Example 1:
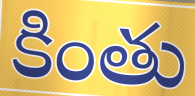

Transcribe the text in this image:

కింతు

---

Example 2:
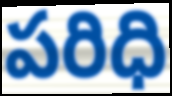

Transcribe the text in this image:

పరిధి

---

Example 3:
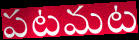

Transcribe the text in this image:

పటమట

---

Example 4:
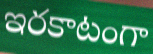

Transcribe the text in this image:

ఇరకాటంగా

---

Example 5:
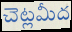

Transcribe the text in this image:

చెట్లమీద